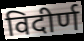
विदीर्ण